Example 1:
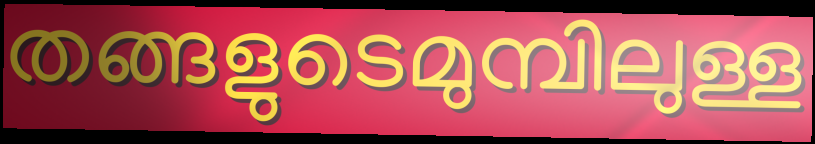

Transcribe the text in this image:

തങ്ങളുടെമുമ്പിലുള്ള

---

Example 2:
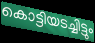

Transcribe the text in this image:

കൊട്ടിയടച്ചിട്ടും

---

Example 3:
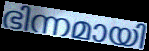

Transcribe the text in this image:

ഭിന്നമായി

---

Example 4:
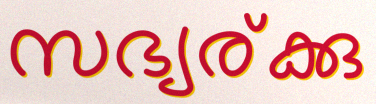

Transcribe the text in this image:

സഭ്യര്ക്കു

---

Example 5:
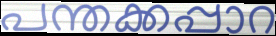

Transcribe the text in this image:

പന്തക്കപ്പാറ